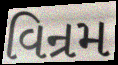
વિન્રમ